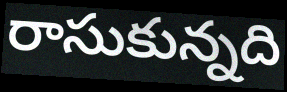
రాసుకున్నది